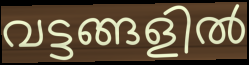
വട്ടങ്ങളിൽ